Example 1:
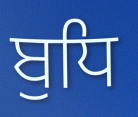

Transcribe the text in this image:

ਬੁਧਿ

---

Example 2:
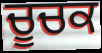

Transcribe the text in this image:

ਚੂਚਕ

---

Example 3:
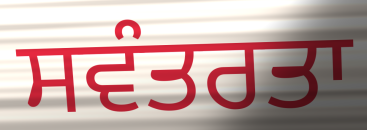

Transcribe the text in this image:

ਸਵੰਤਰਤਾ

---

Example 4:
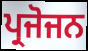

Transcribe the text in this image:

ਪ੍ਰਜੋਜਨ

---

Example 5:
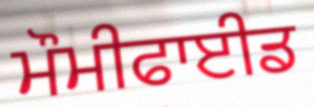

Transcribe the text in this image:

ਮੌਮੀਫਾਈਡ